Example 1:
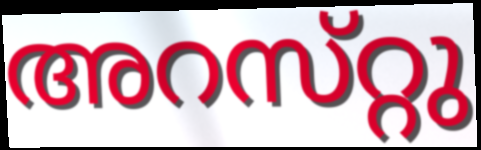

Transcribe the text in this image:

അറസ്‌റ്റു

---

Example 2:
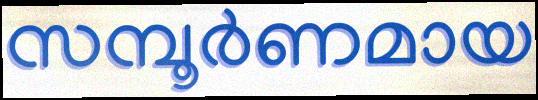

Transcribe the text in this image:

സമ്പൂർണമായ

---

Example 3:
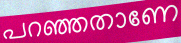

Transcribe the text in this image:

പറഞ്ഞതാണേ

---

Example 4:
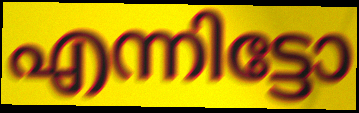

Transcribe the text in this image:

എന്നിട്ടോ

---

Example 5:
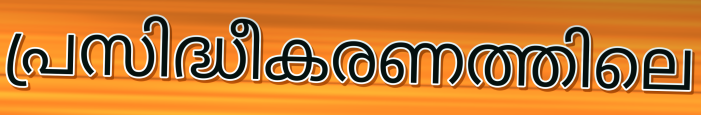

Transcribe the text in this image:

പ്രസിദ്ധീകരണത്തിലെ